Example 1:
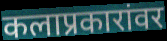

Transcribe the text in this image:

कलाप्रकारांवर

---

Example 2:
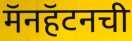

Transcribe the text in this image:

मॅनहॅटनची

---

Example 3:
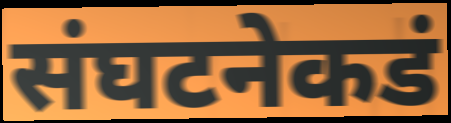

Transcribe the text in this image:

संघटनेकडं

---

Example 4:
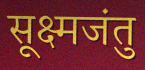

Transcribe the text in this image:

सूक्ष्मजंतु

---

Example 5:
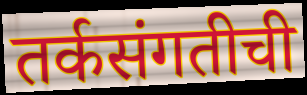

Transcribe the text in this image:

तर्कसंगतीची